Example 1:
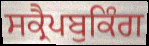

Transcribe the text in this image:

ਸਕ੍ਰੈਪਬੁਕਿੰਗ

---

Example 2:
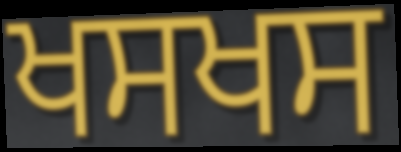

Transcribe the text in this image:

ਖਸਖਸ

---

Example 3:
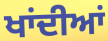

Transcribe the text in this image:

ਖਾਂਦੀਆਂ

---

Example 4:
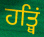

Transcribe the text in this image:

ਹਤ੍ਥਿਂ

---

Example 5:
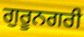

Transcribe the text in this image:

ਗੁਰੂਨਗਰੀ